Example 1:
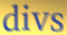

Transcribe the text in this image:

divs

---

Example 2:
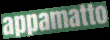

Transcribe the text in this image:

appamatto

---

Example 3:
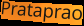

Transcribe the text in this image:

Prataprao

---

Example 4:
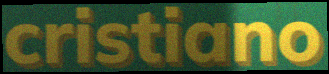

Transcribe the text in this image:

cristiano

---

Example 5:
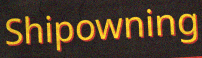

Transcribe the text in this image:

Shipowning